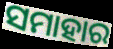
ସମାହାର